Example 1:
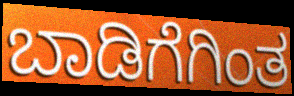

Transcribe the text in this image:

ಬಾಡಿಗೆಗಿಂತ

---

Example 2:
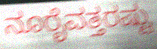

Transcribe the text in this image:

ನೂರೈವತ್ತರಷ್ಟು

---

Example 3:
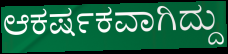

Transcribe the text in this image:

ಆಕರ್ಷಕವಾಗಿದ್ದು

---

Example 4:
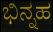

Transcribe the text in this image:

ಭಿನ್ನಹ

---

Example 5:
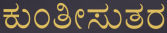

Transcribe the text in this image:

ಕುಂತೀಸುತರ